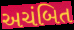
અચંબિત